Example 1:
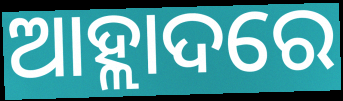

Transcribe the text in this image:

ଆହ୍ଲାଦରେ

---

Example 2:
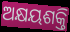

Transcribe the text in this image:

ଅକ୍ଷୟଶକ୍ତି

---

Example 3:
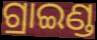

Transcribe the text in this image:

ଗ୍ରାଇଣ୍ଡ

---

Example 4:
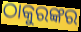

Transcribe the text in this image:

ଠାକୁରଙ୍କର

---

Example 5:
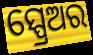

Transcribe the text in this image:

ସ୍ପ୍ରେଅର